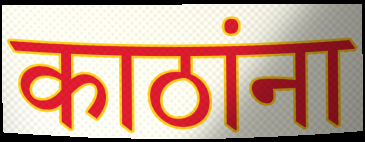
काठांना